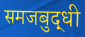
समजबुद्धी